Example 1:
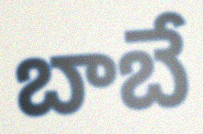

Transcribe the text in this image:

బాబే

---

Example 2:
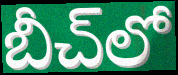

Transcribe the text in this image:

బీచ్‌లో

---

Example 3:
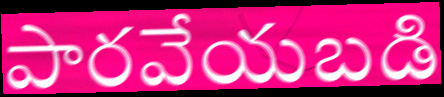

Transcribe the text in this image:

పారవేయబడి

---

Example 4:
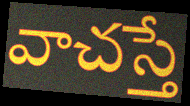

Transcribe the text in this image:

వాచస్తే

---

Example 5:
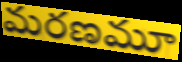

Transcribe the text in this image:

మరణమూ